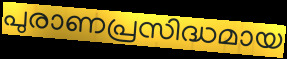
പുരാണപ്രസിദ്ധമായ